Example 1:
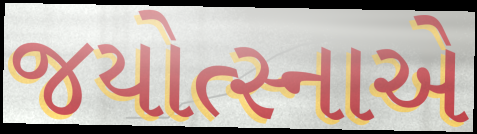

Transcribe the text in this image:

જયોત્સ્નાએ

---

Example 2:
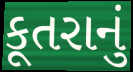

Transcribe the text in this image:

કૂતરાનું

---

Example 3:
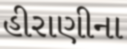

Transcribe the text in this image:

હીરાણીના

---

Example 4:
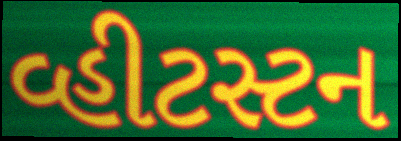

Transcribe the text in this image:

વ્હીટસ્ટન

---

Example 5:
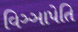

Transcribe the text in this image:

વિઞ્ઞાપેતિ